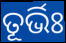
ତୂର୍ଭିଃ